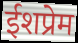
ईशप्रेम